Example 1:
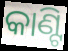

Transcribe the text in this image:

କାଣ୍ଟି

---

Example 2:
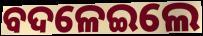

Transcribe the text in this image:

ବଦଳେଇଲେ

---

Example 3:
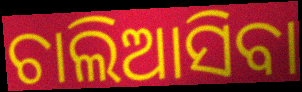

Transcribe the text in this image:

ଚାଲିଆସିବା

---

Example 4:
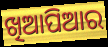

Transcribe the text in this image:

ଖିଆପିଆର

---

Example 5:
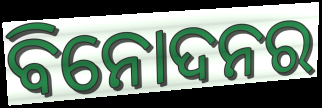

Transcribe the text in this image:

ବିନୋଦନର